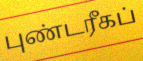
புண்டரீகப்